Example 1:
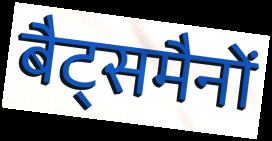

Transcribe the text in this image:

बैट्समैनों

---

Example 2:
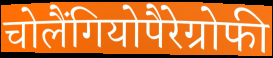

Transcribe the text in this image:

चोलैंगियोपैरेग्रोफी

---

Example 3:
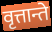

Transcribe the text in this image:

वृत्तान्ते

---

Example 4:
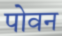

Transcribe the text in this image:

पोवन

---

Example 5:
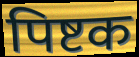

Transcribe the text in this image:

पिष्टक